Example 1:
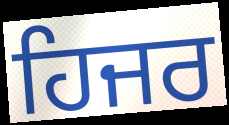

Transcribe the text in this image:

ਹਿਜਰ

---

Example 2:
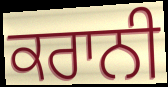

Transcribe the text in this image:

ਕਰਾਨੀ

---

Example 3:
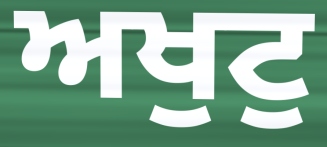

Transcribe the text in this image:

ਅਖੁਟੁ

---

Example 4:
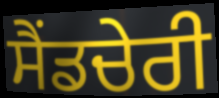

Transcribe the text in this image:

ਸੈਂਡਚੇਰੀ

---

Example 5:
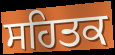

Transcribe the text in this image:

ਸਹਿਤਕ